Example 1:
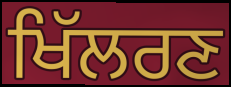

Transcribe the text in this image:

ਖਿੱਲਰਣ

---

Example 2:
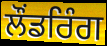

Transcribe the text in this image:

ਲੌਂਡਰਿੰਗ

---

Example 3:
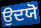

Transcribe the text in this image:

ਉਦਯੋ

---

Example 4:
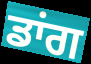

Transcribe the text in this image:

ਡਾਂਗ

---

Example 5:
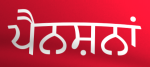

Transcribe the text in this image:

ਪੈਨਸ਼ਨਾਂ